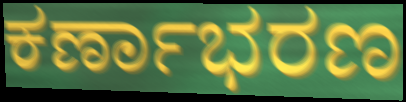
ಕರ್ಣಾಭರಣ